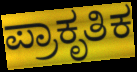
ಪ್ರಾಕೃತಿಕ